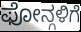
ಫೋನ್ಗಳಿಗೆ